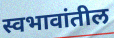
स्वभावांतील